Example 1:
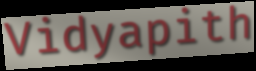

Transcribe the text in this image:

Vidyapith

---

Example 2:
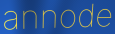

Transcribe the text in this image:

annode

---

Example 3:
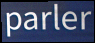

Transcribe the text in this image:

parler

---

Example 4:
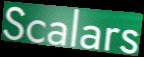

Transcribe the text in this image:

Scalars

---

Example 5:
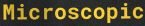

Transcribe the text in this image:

Microscopic